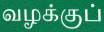
வழக்குப்